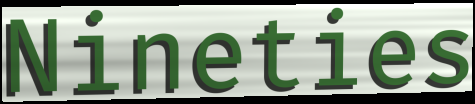
Nineties